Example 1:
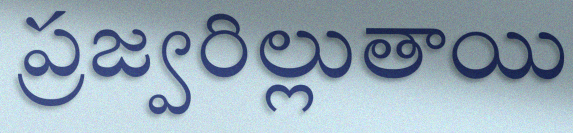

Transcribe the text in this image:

ప్రజ్వరిల్లుతాయి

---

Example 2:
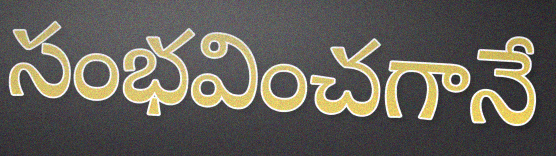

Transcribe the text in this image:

సంభవించగానే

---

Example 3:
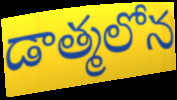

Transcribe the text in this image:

డాత్మలోన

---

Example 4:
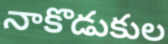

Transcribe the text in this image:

నాకొడుకుల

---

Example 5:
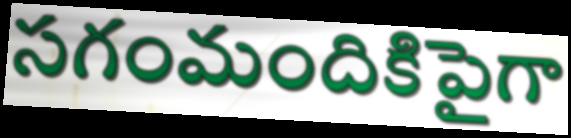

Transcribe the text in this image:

సగంమందికిపైగా